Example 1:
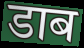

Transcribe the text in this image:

डाब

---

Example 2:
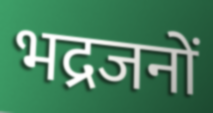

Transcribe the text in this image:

भद्रजनों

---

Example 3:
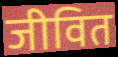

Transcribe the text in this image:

जीवित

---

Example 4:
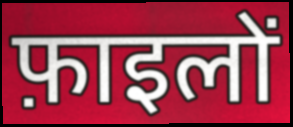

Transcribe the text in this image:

फ़ाइलों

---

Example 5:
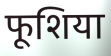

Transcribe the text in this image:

फूशिया